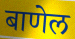
बाणेल